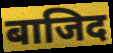
बाजिद